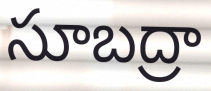
సూబద్రా